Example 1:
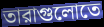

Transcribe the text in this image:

তারাগুলোতে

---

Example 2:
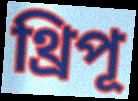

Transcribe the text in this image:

থ্রিপূ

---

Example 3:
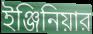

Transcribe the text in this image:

ইঞ্জিনিয়ার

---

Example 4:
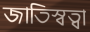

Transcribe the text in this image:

জাতিস্বত্বা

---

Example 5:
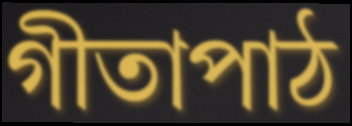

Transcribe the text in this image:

গীতাপাঠ